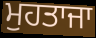
ਮੁਹਤਾਜਾ